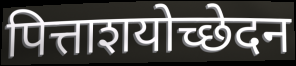
पित्ताशयोच्छेदन